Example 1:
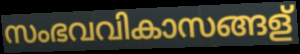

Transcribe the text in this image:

സംഭവവികാസങ്ങള്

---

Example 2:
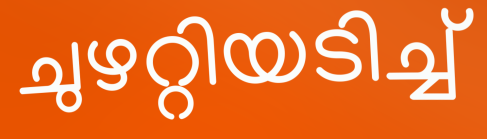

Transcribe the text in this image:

ചുഴറ്റിയടിച്ച്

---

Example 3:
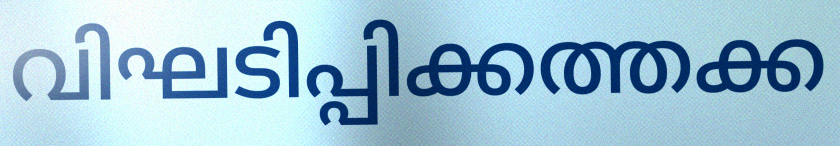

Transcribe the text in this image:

വിഘടിപ്പിക്കത്തക്ക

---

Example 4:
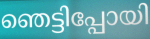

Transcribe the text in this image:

ഞെട്ടിപ്പോയി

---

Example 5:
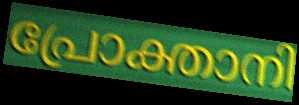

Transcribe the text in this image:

പ്രോക്താനി